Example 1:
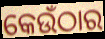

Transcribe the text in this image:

କେଉଁଠାର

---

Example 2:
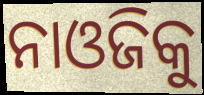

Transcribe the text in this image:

ନାଓଜିକୁ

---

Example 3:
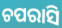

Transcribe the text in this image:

ଚପରାସି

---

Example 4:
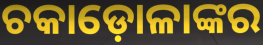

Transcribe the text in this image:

ଚକାଡ଼ୋଳାଙ୍କର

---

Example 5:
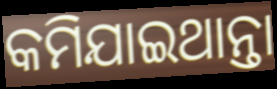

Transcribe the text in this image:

କମିଯାଇଥାନ୍ତା